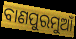
ବାଣପୁରମୁଆଁ